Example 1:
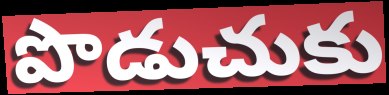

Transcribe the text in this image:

పొడుచుకు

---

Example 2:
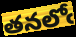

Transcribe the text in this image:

తనలోఁ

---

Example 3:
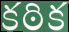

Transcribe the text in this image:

కఠిక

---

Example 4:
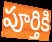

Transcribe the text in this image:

పూర్తికి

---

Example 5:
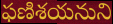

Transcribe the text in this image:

ఫణిశయనుని